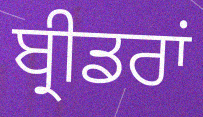
ਬ੍ਰੀਡਰਾਂ